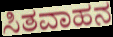
ಸಿತವಾಹನ